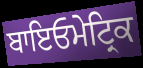
ਬਾਇਓਮੇਟ੍ਰਿਕ